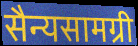
सैन्यसामग्री